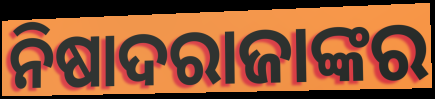
ନିଷାଦରାଜାଙ୍କର